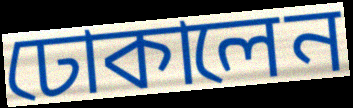
ঢোকালেন